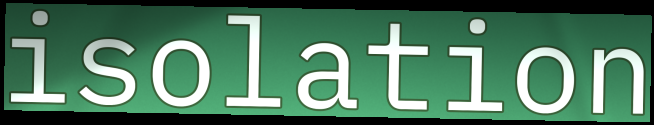
isolation